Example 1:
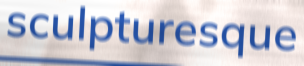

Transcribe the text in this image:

sculpturesque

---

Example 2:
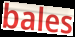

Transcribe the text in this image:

bales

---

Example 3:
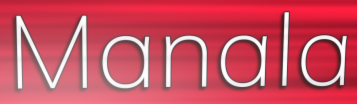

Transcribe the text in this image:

Manala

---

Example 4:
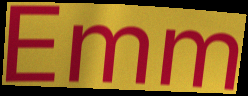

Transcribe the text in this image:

Emm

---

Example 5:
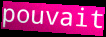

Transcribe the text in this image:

pouvait